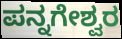
ಪನ್ನಗೇಶ್ವರ